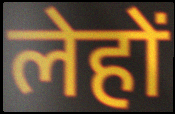
लेहों